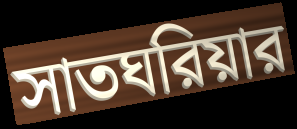
সাতঘরিয়ার